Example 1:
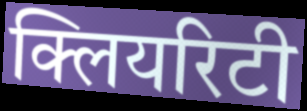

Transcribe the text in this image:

क्लियरिटी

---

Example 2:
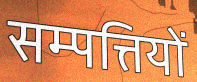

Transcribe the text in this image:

सम्पत्तियों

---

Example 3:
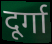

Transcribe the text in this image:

दूर्गा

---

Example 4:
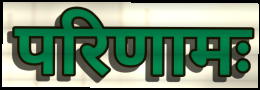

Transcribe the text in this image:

परिणामः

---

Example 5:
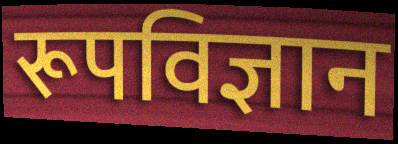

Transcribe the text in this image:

रूपविज्ञान